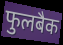
फुलबैक